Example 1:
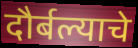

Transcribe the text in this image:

दौर्बल्याचे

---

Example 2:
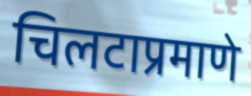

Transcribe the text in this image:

चिलटाप्रमाणे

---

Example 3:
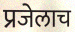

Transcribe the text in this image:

प्रजेलाच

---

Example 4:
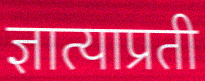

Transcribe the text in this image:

ज्ञात्याप्रती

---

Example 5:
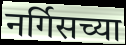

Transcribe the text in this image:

नर्गिसच्या